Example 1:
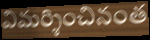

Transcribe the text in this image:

విమర్శించినంత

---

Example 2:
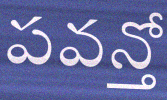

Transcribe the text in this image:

పవన్తో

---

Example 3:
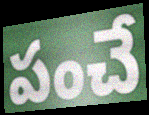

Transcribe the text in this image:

పంచే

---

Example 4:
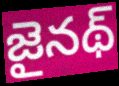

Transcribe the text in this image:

జైనథ్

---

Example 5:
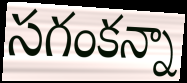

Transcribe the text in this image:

సగంకన్నా